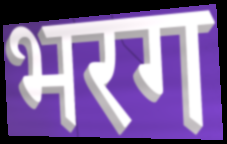
भरग